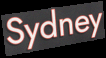
Sydney